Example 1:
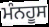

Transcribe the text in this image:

ਮੰਨਹੂਸ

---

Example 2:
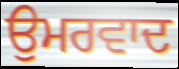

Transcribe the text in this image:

ਉਮਰਵਾਦ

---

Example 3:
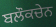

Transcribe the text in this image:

ਬਲੌਕਚੇਨ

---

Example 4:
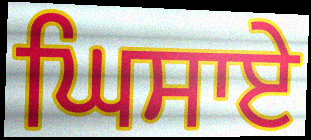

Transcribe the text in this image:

ਘਿਸਾਏ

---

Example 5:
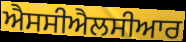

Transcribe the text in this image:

ਐਸਸੀਐਲਸੀਆਰ